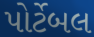
પોર્ટેબલ